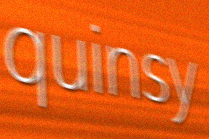
quinsy